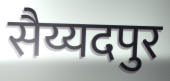
सैय्यदपुर